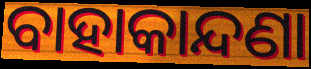
ବାହାକାନ୍ଦଣା